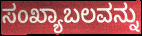
ಸಂಖ್ಯಾಬಲವನ್ನು